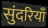
सुंदरियाँ